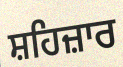
ਸ਼ਹਿਜ਼ਾਰ